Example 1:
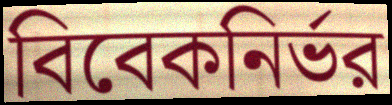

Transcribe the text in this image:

বিবেকনির্ভর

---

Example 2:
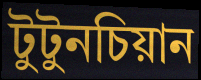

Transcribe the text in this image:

টুটুনচিয়ান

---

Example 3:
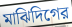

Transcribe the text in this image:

মাঝিদিগের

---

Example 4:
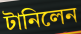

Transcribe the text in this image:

টানিলেন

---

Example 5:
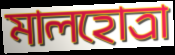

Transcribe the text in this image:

মালহোত্রা